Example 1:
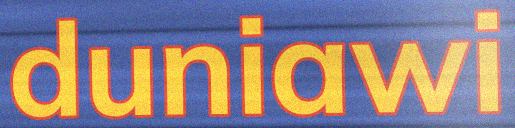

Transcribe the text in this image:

duniawi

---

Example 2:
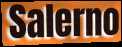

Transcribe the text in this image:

Salerno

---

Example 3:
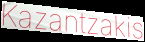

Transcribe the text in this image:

Kazantzakis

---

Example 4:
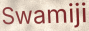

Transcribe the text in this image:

Swamiji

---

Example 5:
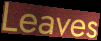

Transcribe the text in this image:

Leaves